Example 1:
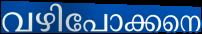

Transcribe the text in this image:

വഴിപോക്കനെ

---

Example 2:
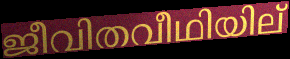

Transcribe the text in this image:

ജീവിതവീഥിയില്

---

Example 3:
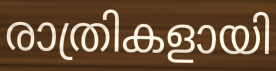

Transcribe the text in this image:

രാത്രികളായി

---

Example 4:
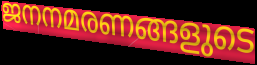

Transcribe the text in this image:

ജനനമരണങ്ങളുടെ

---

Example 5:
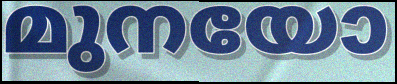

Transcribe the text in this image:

മുനയോ